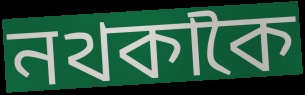
নথকাকৈ